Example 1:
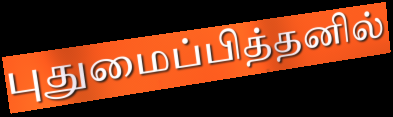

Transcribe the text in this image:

புதுமைப்பித்தனில்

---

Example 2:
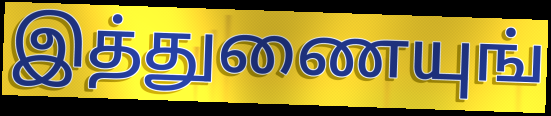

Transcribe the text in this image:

இத்துணையுங்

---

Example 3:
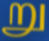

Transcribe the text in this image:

று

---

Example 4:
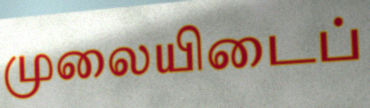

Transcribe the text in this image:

முலையிடைப்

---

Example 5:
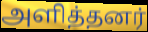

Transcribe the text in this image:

அளித்தனர்